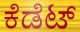
ಕೆಡೆಟ್